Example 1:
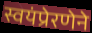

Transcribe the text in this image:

स्वयंप्रेरणेने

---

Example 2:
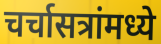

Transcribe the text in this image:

चर्चासत्रांमध्ये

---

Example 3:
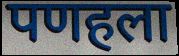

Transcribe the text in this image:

पणहला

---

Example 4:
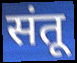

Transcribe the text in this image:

संतू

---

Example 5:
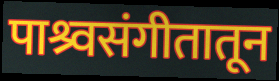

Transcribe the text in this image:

पाश्र्वसंगीतातून